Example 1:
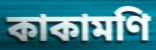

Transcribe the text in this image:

কাকামণি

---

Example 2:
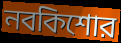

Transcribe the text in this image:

নবকিশোর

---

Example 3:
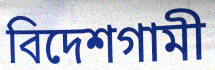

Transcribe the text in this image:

বিদেশগামী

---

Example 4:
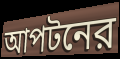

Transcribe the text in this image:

আপটনের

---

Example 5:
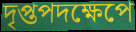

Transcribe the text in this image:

দৃপ্তপদক্ষেপে